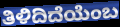
ತಿಳಿದಿದೆಯೆಂಬ